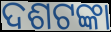
ଦଶଟଙ୍କା